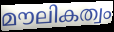
മൗലികത്വം